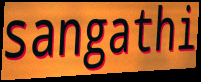
sangathi